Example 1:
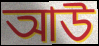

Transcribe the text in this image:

আউ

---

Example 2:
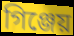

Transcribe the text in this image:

গিঞ্জেয়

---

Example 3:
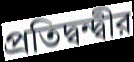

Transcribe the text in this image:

প্রতিদ্বন্দ্বীর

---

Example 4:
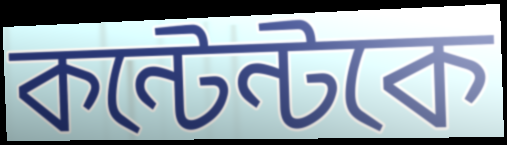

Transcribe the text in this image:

কন্টেন্টকে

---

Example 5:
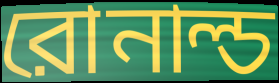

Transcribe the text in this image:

রোনাল্ড